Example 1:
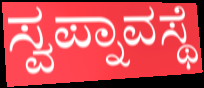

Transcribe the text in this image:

ಸ್ವಪ್ನಾವಸ್ಥೆ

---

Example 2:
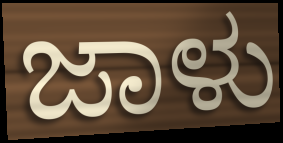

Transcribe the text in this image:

ಜಾಳು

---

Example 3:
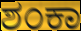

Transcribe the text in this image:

ಶಂಕಾ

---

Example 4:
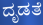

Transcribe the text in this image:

ದೃಡತೆ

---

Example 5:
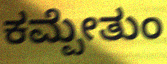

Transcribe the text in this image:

ಕಮ್ಪೇತುಂ